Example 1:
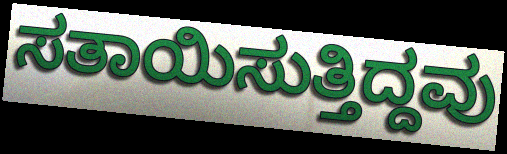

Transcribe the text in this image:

ಸತಾಯಿಸುತ್ತಿದ್ದವು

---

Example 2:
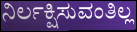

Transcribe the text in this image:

ನಿರ್ಲಕ್ಷಿಸುವಂತಿಲ್ಲ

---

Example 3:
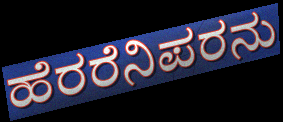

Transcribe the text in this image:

ಹೆರರೆನಿಪರನು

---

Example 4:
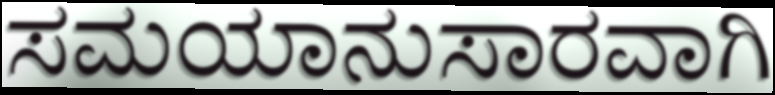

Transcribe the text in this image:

ಸಮಯಾನುಸಾರವಾಗಿ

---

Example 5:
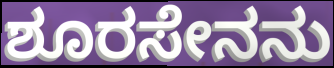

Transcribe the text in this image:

ಶೂರಸೇನನು